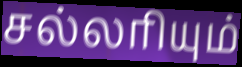
சல்லரியும்